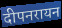
दीपनरायन